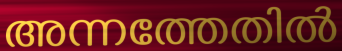
അന്നത്തേതിൽ